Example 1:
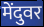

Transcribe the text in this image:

मेंदुवर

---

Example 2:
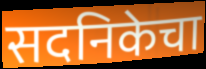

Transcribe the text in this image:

सदनिकेचा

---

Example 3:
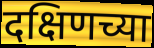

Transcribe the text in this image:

दक्षिणच्या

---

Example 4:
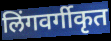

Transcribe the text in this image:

लिंगवर्गीकृत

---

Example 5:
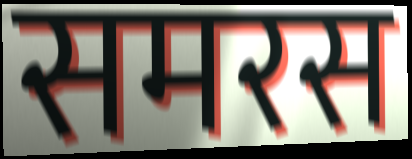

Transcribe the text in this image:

समरस